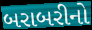
બરાબરીનો